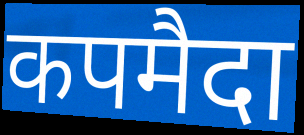
कपमैदा